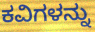
ಕವಿಗಳನ್ನು